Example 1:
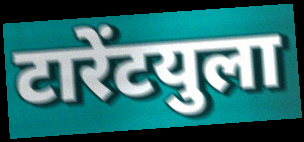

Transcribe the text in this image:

टारेंटयुला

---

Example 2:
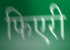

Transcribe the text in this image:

फिएरी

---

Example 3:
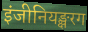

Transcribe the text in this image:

इंजीनियङ्क्षरग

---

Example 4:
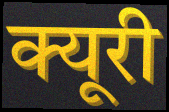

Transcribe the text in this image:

क्यूरी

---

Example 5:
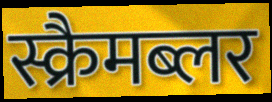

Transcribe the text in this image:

स्क्रैमब्लर